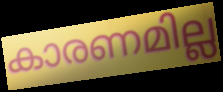
കാരണമില്ല